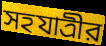
সহযাত্রীর